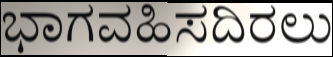
ಭಾಗವಹಿಸದಿರಲು